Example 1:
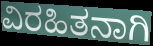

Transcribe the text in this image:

ವಿರಹಿತನಾಗಿ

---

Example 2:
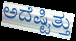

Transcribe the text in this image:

ಅದೆಷ್ಟಿತ್ತು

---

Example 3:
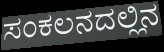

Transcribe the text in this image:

ಸಂಕಲನದಲ್ಲಿನ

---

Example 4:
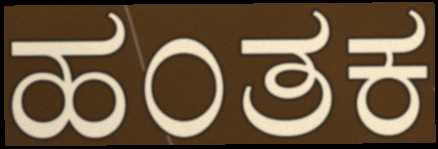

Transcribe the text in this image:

ಹಂತಕ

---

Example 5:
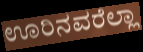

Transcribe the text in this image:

ಊರಿನವರೆಲ್ಲಾ